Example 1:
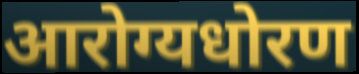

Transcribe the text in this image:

आरोग्यधोरण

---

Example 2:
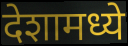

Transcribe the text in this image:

देशामध्ये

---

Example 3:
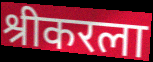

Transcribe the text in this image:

श्रीकरला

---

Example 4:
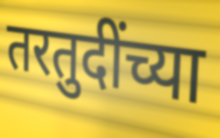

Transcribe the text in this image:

तरतुदींच्या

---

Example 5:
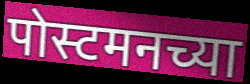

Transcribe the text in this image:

पोस्टमनच्या